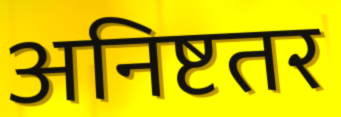
अनिष्टतर